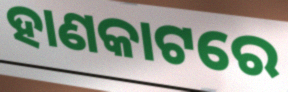
ହାଣକାଟରେ